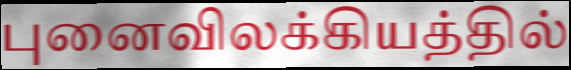
புனைவிலக்கியத்தில்